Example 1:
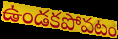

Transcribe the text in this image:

ఉండకపోవటం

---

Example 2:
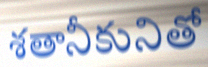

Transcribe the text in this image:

శతానీకునితో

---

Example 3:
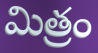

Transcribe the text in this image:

మిత్రం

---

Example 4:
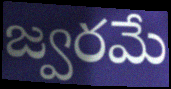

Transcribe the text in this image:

జ్వరమే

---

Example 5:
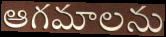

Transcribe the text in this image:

ఆగమాలను